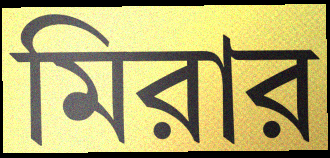
মিরার